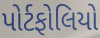
પોર્ટફોલિયો